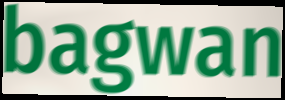
bagwan